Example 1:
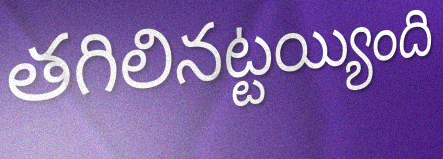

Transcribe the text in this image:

తగిలినట్టయ్యింది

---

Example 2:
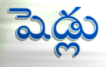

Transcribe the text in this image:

షెడ్లు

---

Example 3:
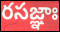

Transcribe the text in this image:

రసజ్ఞాః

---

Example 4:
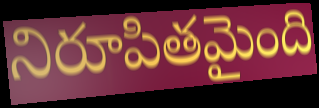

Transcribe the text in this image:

నిరూపితమైంది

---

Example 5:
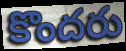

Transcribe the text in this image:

కొందరు